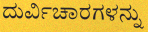
ದುರ್ವಿಚಾರಗಳನ್ನು